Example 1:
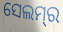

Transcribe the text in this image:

ସେଲମ୍‌ର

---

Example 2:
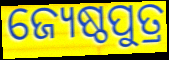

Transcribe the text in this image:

ଜ୍ୟେଷ୍ଠପୁତ୍ର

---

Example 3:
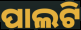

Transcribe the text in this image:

ପାଲଟି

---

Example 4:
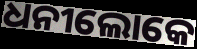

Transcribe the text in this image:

ଧନୀଲୋକେ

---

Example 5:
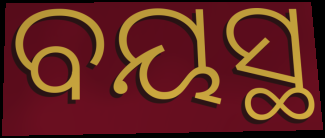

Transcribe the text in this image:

ବୟସ୍ଥ